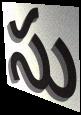
సు